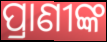
ପ୍ରାଣୀଙ୍କ